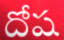
దోష